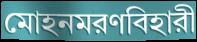
মোহনমরণবিহারী